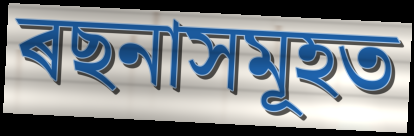
ৰছনাসমূহত